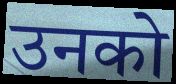
उनको